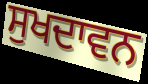
ਸੁਖਦਾਵਨ